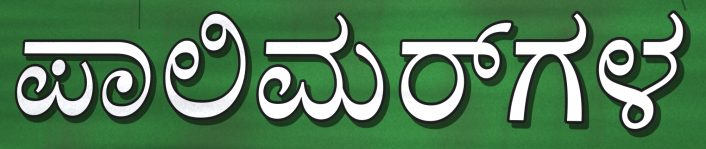
ಪಾಲಿಮರ್‌ಗಳ